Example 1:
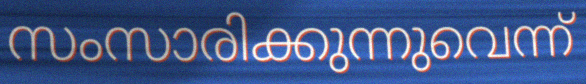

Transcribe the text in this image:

സംസാരിക്കുന്നുവെന്ന്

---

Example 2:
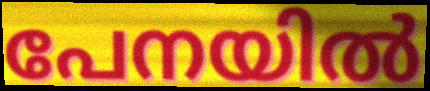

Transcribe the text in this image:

പേനയിൽ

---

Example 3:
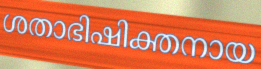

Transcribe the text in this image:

ശതാഭിഷിക്തനായ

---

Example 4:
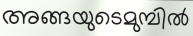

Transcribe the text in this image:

അങ്ങയുടെമുമ്പിൽ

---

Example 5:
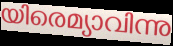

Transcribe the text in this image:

യിരെമ്യാവിന്നു